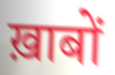
ख़ाबों